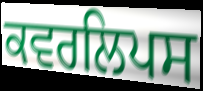
ਕਵਰਲਿਪਸ